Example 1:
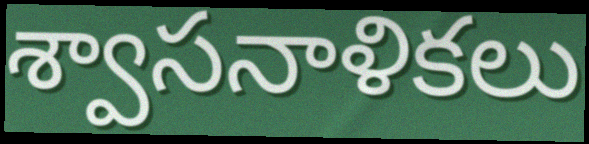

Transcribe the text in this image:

శ్వాసనాళికలు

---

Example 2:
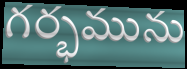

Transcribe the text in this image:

గర్భమును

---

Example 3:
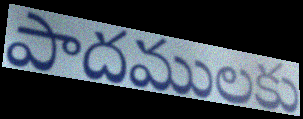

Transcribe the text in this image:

పాదములకు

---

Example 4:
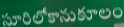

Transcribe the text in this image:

సూరిలోకానుకూలం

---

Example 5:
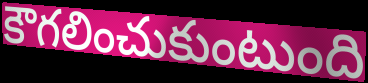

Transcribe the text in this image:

కౌగలించుకుంటుంది